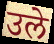
उले